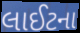
લાઈટના